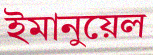
ইমানুয়েল